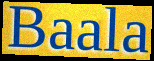
Baala